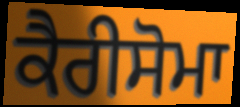
ਕੈਰੀਸੋਮਾ